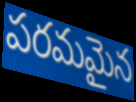
పరమమైన